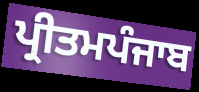
ਪ੍ਰੀਤਮਪੰਜਾਬ